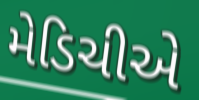
મેડિચીએ